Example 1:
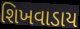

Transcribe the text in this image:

શિખવાડાય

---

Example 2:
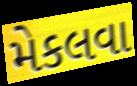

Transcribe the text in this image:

મેકલવા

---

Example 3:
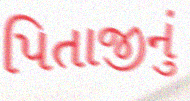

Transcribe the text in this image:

પિતાજીનું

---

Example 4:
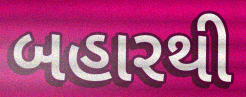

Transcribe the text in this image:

બહારથી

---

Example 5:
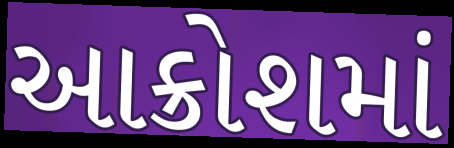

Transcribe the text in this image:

આક્રોશમાં